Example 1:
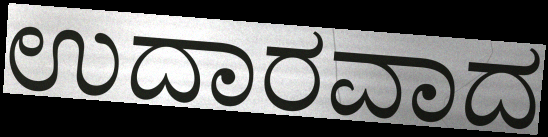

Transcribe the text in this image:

ಉದಾರವಾದ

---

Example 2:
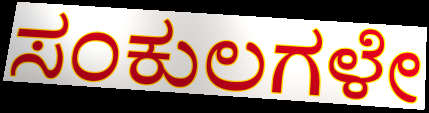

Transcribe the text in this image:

ಸಂಕುಲಗಳೇ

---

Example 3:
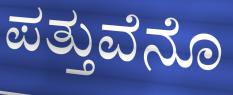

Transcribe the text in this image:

ಪತ್ತುವೆನೊ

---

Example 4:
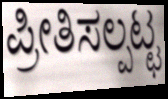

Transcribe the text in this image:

ಪ್ರೀತಿಸಲ್ಪಟ್ಟ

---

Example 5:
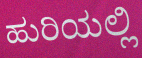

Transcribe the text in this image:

ಹುರಿಯಲ್ಲಿ